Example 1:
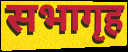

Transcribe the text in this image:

सभागृह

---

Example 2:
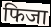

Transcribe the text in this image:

फिजा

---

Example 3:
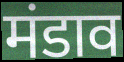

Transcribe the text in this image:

मंडाव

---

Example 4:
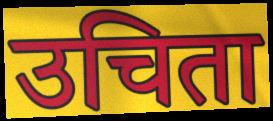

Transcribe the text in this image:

उचिता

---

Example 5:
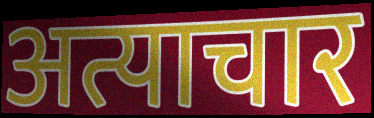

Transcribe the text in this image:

अत्याचार